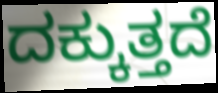
ದಕ್ಕುತ್ತದೆ